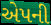
એપની